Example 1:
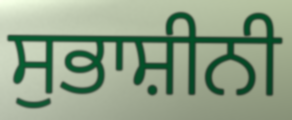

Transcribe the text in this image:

ਸੁਭਾਸ਼ੀਨੀ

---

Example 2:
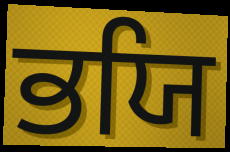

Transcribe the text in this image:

ਭਯਿ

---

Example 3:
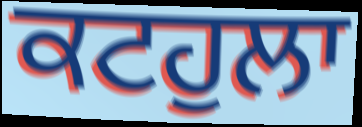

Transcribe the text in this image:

ਕਟਹੁਲਾ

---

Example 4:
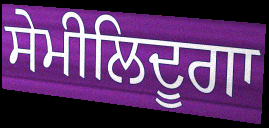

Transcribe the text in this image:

ਸੇਮੀਲਿਦੂਗਾ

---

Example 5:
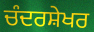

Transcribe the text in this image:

ਚੰਦਰਸ਼ੇਖਰ